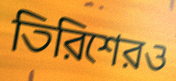
তিরিশেরও